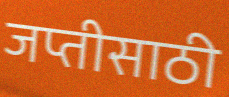
जप्तीसाठी